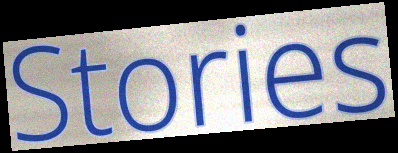
Stories